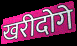
खरीदोगे